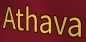
Athava